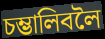
চম্ভালিবলৈ